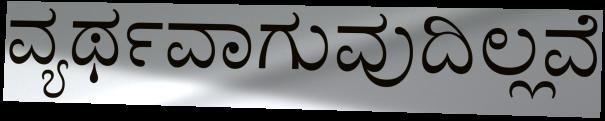
ವ್ಯರ್ಥವಾಗುವುದಿಲ್ಲವೆ